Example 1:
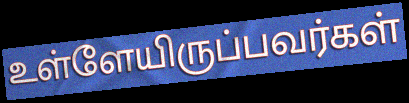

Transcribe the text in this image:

உள்ளேயிருப்பவர்கள்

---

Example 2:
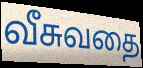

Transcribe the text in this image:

வீசுவதை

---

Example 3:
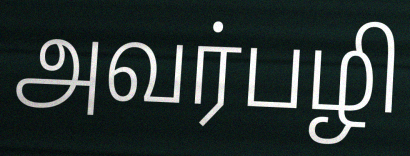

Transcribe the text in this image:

அவர்பழி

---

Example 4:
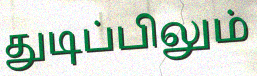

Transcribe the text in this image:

துடிப்பிலும்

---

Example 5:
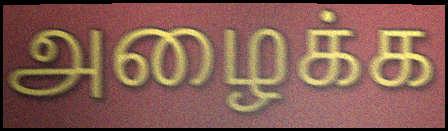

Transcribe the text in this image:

அழைக்க